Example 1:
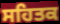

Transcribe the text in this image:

ਸਹਿਤਕ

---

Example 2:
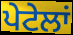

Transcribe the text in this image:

ਪੇਟੇਲਾਂ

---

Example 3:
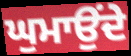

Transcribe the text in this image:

ਘੁਮਾਉਂਦੇ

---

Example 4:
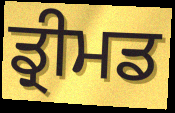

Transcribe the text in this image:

ਡ੍ਰੀਮਡ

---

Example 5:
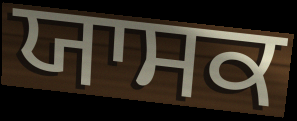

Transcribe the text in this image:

ਯਾਸਕ